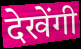
देखेंगी